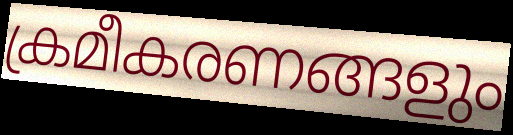
ക്രമീകരണങ്ങളും